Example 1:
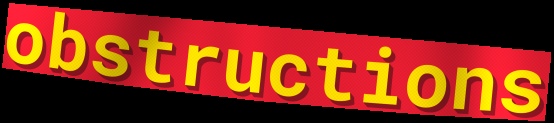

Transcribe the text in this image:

obstructions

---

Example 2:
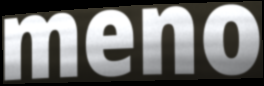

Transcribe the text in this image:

meno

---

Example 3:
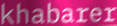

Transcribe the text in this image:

khabarer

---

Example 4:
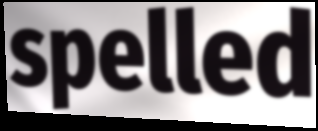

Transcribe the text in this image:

spelled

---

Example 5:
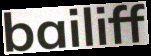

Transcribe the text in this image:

bailiff